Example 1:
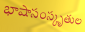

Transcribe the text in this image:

భాషాసంస్కృతుల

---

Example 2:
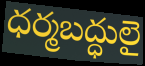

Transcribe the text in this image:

ధర్మబద్ధులై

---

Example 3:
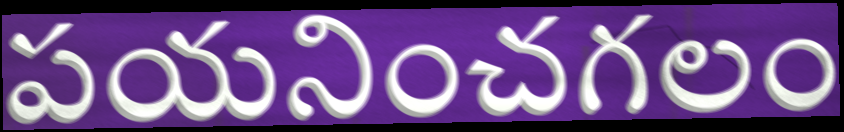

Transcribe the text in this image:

పయనించగలం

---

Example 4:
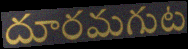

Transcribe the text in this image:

దూరమగుట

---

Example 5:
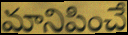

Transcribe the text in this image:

మానిపించే